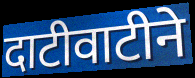
दाटीवाटीने